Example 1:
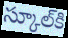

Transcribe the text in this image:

స్కూల్‌కి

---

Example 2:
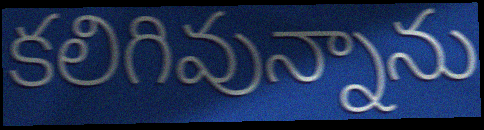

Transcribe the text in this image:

కలిగివున్నాను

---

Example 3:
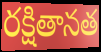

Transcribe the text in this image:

రక్షితానత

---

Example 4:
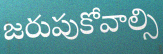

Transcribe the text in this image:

జరుపుకోవాల్సి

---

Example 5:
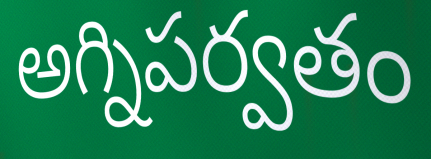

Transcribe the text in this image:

అగ్నిపర్వతం